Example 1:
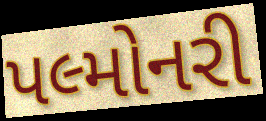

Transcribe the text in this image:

પલ્મોનરી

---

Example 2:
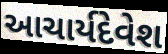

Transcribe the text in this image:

આચાર્યદેવેશ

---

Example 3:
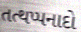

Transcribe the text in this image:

તત્થપ્પનાદો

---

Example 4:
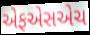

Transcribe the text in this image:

એફએસએચ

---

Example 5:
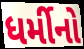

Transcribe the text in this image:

ધર્મીનો